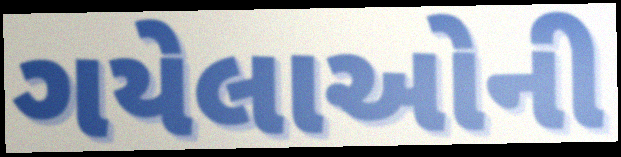
ગયેલાઓની